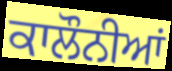
ਕਾਲੌਨੀਆਂ